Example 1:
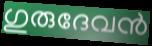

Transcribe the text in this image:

ഗുരുദേവൻ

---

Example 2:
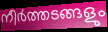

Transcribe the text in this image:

നീർത്തടങ്ങളും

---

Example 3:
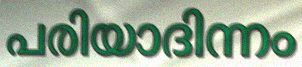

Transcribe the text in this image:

പരിയാദിന്നം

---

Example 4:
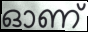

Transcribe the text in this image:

ഓണ്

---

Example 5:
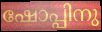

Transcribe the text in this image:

ഷോപ്പിനു